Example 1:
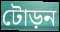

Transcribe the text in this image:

টোড়ন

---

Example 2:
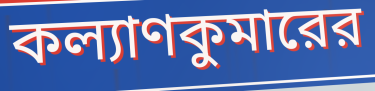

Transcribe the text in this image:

কল্যাণকুমারের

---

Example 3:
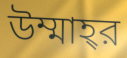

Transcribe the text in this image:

উম্মাহ্‌র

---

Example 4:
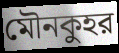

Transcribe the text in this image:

মৌনকুহর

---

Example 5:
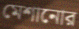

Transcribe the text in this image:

মেশানোর